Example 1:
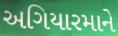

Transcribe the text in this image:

અગિયારમાને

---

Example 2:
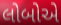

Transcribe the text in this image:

લોબોએ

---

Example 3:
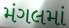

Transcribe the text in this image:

મંગલમાં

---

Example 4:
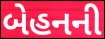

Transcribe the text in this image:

બેહનની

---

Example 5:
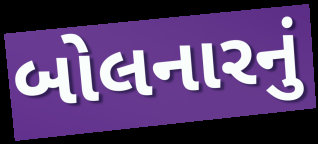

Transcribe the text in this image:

બોલનારનું